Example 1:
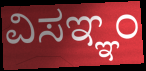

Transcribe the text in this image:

ವಿಸಞ್ಞಂ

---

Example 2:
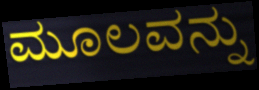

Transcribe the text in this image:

ಮೂಲವನ್ನು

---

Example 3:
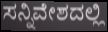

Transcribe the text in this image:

ಸನ್ನಿವೇಶದಲ್ಲಿ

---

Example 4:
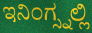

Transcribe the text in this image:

ಇನಿಂಗ್ಸ್ನಲ್ಲಿ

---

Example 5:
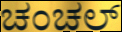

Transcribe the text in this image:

ಚಂಚಲ್